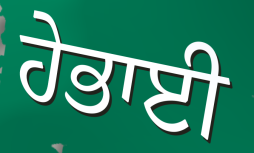
ਹੇਭਾਈ